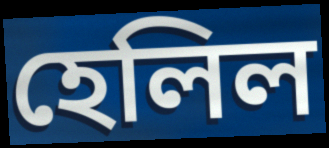
হেলিল